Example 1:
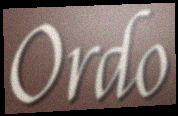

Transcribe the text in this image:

Ordo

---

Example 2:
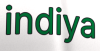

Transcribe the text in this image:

indiya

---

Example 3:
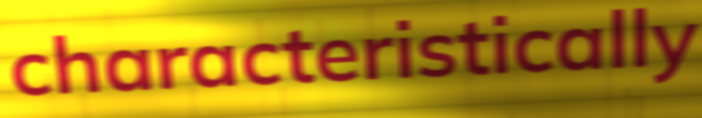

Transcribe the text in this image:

characteristically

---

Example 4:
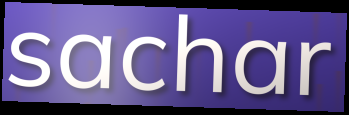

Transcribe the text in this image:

sachar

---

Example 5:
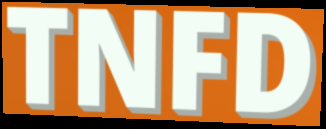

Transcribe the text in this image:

TNFD